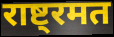
राष्ट्रमत